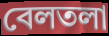
বেলতলা